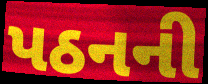
પઠનની